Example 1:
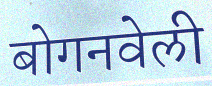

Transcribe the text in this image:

बोगनवेली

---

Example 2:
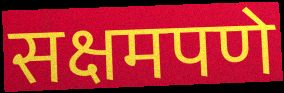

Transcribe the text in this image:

सक्षमपणे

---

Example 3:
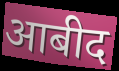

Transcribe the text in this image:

आबीद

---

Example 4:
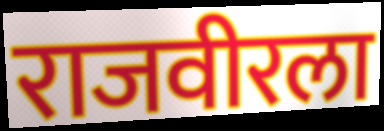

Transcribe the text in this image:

राजवीरला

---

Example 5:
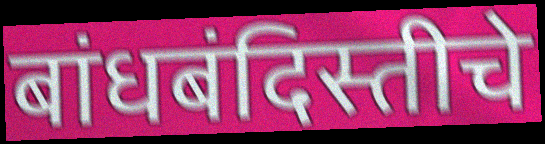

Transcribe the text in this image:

बांधबंदिस्तीचे